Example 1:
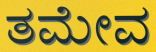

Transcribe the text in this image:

ತಮೇವ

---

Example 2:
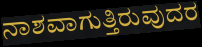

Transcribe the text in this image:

ನಾಶವಾಗುತ್ತಿರುವುದರ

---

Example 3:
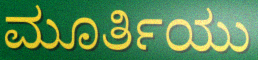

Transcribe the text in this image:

ಮೂರ್ತಿಯು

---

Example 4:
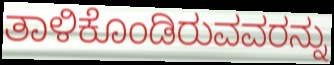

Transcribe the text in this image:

ತಾಳಿಕೊಂಡಿರುವವರನ್ನು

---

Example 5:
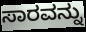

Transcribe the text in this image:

ಸಾರವನ್ನು